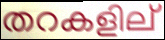
തറകളില്